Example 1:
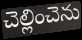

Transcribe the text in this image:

చెల్లించెను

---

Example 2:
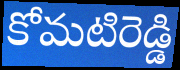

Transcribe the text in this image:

కోమటిరెడ్డి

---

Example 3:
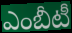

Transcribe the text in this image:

ఎంబీటీ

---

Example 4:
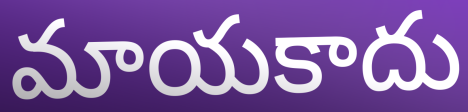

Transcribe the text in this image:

మాయకాదు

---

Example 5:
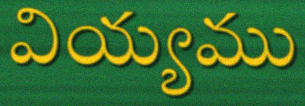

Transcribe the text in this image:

వియ్యము